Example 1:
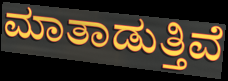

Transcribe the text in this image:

ಮಾತಾಡುತ್ತಿವೆ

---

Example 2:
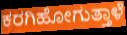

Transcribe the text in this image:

ಕರಗಿಹೋಗುತ್ತಾಳೆ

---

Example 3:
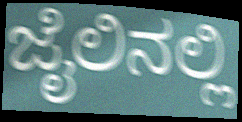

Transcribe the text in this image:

ಜೈಲಿನಲ್ಲಿ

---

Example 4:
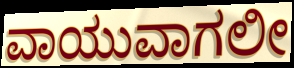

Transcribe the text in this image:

ವಾಯುವಾಗಲೀ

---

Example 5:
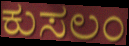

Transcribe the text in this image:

ಕುಸಲಂ